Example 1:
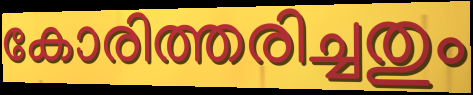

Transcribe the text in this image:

കോരിത്തരിച്ചതും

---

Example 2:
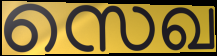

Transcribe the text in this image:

സെഖ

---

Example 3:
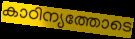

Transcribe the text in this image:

കാഠിന്യത്തോടെ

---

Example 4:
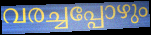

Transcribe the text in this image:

വരച്ചപ്പോഴും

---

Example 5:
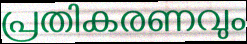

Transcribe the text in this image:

പ്രതികരണവും